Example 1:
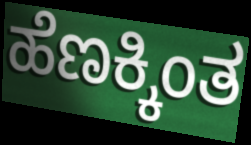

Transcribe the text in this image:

ಹೆಣಕ್ಕಿಂತ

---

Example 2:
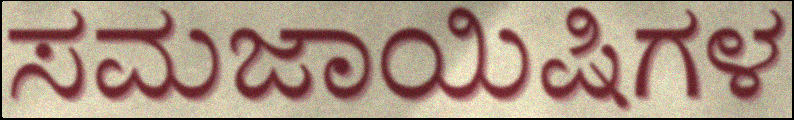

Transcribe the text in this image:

ಸಮಜಾಯಿಷಿಗಳ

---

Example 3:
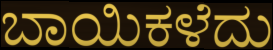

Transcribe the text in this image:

ಬಾಯಿಕಳೆದು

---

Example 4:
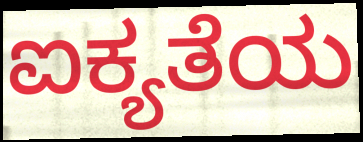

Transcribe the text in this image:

ಐಕ್ಯತೆಯ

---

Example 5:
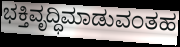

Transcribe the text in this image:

ಭಕ್ತಿವೃದ್ಧಿಮಾಡುವಂತಹ